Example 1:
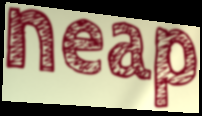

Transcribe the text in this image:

neap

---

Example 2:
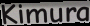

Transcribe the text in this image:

Kimura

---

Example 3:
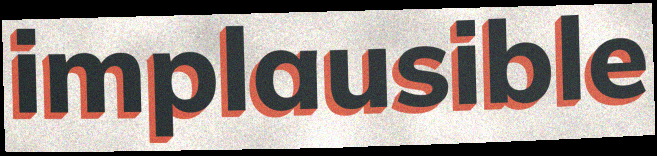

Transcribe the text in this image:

implausible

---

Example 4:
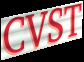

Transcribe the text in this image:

CVST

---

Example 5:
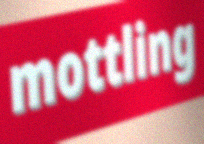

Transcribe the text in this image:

mottling